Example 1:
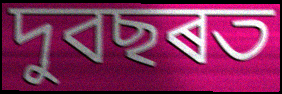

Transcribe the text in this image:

দুবছৰত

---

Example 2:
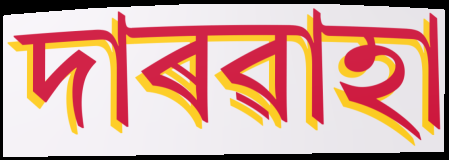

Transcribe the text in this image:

দাৰৱাহা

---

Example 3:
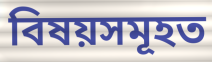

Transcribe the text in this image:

বিষয়সমূহত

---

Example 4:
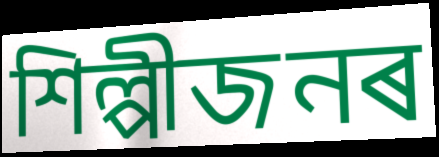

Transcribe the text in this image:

শিল্পীজনৰ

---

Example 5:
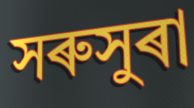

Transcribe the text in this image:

সৰুসুৰা